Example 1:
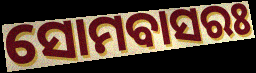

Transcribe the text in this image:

ସୋମବାସରଃ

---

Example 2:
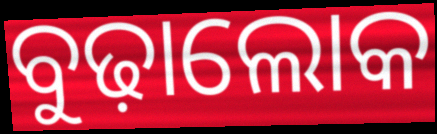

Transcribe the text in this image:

ବୁଢ଼ାଲୋକ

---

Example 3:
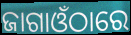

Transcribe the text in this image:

ଜାଗାଓଁଠାରେ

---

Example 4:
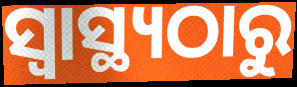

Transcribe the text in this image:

ସ୍ବାସ୍ଥ୍ୟଠାରୁ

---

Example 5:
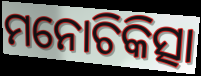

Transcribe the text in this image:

ମନୋଚିକିତ୍ସା